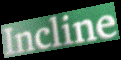
Incline